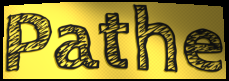
Pathe